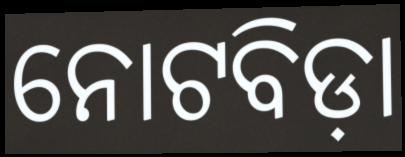
ନୋଟବିଡ଼ା